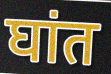
घांत